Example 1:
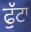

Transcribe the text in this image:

ਫੁੱਟਾ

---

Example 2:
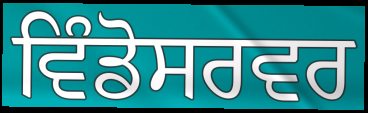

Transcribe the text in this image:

ਵਿੰਡੋਸਰਵਰ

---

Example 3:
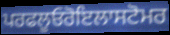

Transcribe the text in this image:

ਪਰਫਲੂਓਰੋਇਲਾਸਟੋਮਰ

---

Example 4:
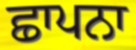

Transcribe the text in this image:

ਛਾਪਨਾ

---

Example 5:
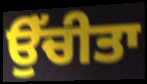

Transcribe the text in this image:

ਉੱਚੀਤਾ